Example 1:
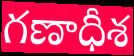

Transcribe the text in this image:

గణాధీశ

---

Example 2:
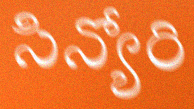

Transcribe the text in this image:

సిన్యోరి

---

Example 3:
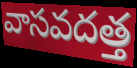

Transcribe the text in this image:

వాసవదత్త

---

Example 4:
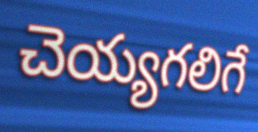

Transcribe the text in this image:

చెయ్యగలిగే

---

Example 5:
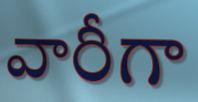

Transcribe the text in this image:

వారీగా